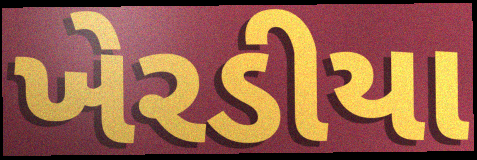
ખેરડીયા